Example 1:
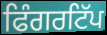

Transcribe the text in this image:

ਫਿੰਗਰਟਿੱਪ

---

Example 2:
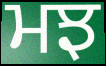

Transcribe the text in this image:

ਮਝ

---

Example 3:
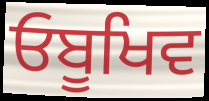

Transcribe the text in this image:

ਓਬੂਖਿਵ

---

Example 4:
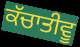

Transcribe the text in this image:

ਕੱਚਾਤੀਵੂ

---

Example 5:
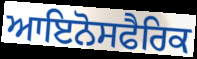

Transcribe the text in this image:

ਆਇਨੋਸਫੈਰਿਕ